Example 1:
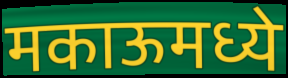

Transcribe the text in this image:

मकाऊमध्ये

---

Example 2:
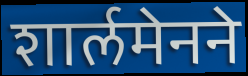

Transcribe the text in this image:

शार्लमेनने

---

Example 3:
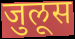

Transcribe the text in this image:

जुलूस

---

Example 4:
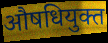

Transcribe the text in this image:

औषधियुक्त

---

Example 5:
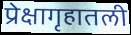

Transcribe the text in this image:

प्रेक्षागृहातली